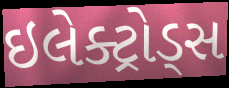
ઇલેક્ટ્રોડ્સ